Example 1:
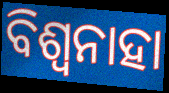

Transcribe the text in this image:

ବିଶ୍ଵନାହା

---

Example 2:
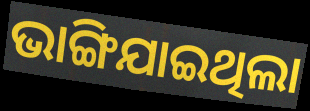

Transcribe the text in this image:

ଭାଙ୍ଗିଯାଇଥିଲା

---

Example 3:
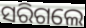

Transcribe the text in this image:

ସରିଗଲେ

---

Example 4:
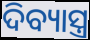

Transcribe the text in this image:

ଦିବ୍ୟାସ୍ତ୍ର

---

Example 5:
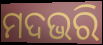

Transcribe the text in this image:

ମଦଭରି